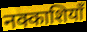
नक्काशियाँ